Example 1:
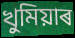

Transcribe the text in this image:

খুমিয়াৰ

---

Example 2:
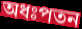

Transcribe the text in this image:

অধঃপতন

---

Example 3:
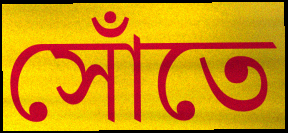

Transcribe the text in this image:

সোঁতে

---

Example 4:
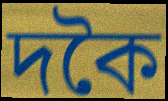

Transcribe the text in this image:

দকৈ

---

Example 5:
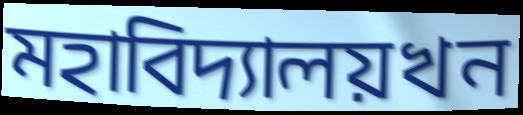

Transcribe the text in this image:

মহাবিদ্যালয়খন